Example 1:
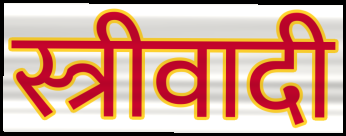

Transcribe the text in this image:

स्त्रीवादी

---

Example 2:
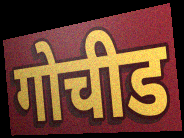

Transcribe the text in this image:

गोचीड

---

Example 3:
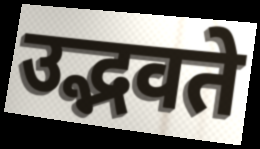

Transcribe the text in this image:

उद्भवते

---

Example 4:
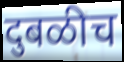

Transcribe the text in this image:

दुबळीच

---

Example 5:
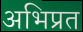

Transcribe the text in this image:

अभिप्रत